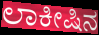
ಲಾಕೀಷಿನ